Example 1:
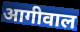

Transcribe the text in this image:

आगीवाल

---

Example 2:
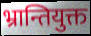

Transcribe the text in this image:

भ्रान्तियुक्त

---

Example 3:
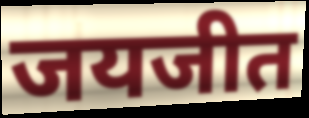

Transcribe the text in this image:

जयजीत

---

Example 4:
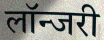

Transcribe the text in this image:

लॉन्जरी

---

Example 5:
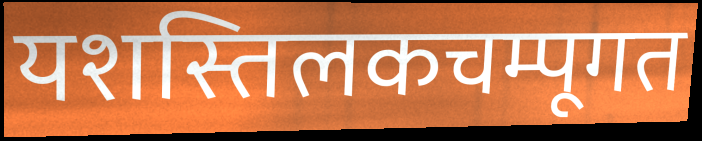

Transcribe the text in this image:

यशस्तिलकचम्पूगत